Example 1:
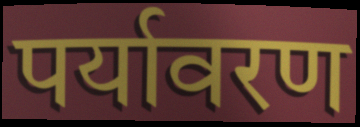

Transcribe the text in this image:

पर्यावरण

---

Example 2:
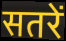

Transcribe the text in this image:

सतरें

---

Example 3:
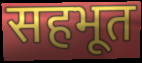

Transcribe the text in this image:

सहभूत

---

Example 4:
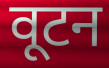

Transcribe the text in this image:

वूटन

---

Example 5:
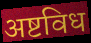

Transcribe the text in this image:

अष्टविध